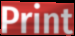
Print